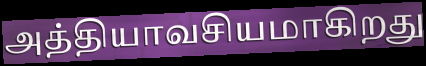
அத்தியாவசியமாகிறது